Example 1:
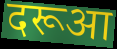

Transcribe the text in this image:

दरूआ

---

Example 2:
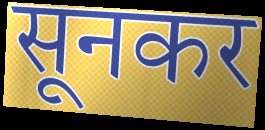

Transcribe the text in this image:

सूनकर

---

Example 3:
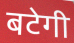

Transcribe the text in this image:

बटेगी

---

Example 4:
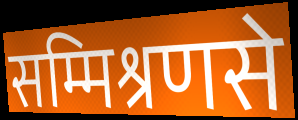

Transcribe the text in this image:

सम्मिश्रणसे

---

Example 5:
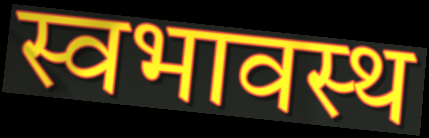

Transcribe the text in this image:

स्वभावस्थ